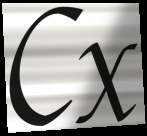
Cx